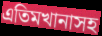
এতিমখানাসহ